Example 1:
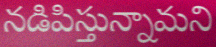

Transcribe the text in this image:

నడిపిస్తున్నామని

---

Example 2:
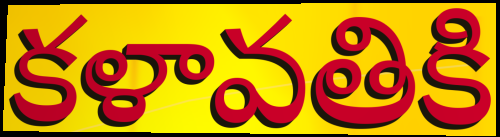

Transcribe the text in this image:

కళావతికి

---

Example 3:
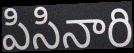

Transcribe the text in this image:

పిసినారి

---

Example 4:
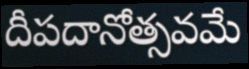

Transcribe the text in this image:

దీపదానోత్సవమే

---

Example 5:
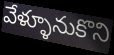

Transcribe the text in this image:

వేళ్ళూనుకొని